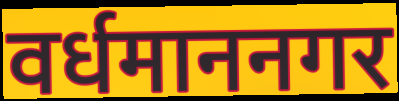
वर्धमाननगर